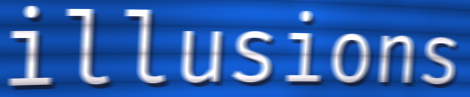
illusions